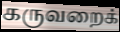
கருவறைக்